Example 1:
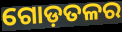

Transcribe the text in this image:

ଗୋଡ଼ତଳର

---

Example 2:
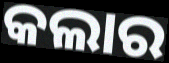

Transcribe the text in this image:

କଲାର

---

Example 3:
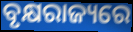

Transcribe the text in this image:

ବୃକ୍ଷରାଜ୍ୟରେ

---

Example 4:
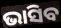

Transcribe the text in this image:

ଭାସିବ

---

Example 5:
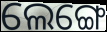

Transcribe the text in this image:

ଲେଙ୍ଗେ